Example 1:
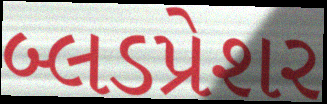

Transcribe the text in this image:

બ્લડપ્રેશર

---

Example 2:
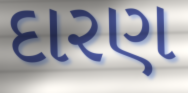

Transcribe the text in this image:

દારણ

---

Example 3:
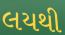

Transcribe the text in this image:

લયથી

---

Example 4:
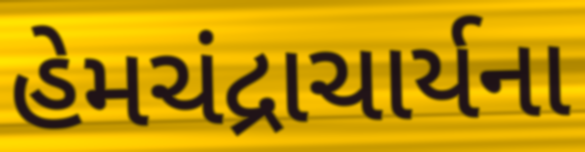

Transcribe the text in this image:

હેમચંદ્રાચાર્યના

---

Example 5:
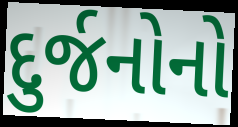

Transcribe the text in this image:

દુર્જનોનો